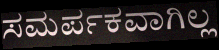
ಸಮರ್ಪಕವಾಗಿಲ್ಲ